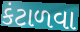
કંટાળવા